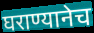
घराण्यानेच